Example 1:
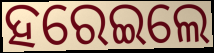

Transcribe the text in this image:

ହରେଇଲେ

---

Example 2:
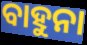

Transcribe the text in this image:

ବାହୁନା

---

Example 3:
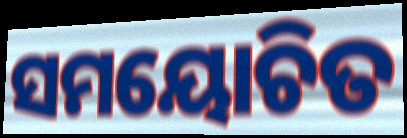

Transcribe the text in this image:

ସମୟୋଚିତ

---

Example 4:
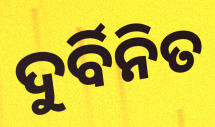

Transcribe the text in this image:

ଦୁର୍ବିନିତ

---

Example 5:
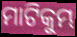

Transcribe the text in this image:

ମାଟିକୁମ୍ଭ